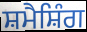
ਸ਼ਮੈਸ਼ਿੰਗ